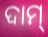
ଦାମ୍